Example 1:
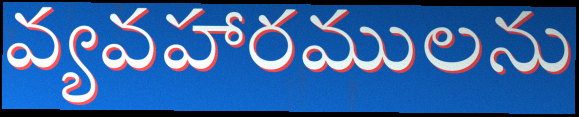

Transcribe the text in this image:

వ్యవహారములను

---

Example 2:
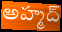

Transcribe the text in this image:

అహ్మద్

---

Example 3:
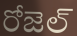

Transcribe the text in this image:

రోజెల్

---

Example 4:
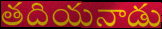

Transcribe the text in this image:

తదియనాడు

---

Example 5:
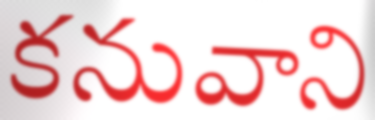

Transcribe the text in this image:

కనువాని